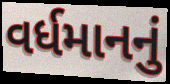
વર્ધમાનનું